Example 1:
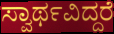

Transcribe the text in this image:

ಸ್ವಾರ್ಥವಿದ್ದರೆ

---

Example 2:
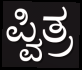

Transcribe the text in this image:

ಪ್ವಿತ್ರ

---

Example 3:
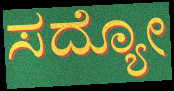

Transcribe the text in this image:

ಸದ್ಯೋ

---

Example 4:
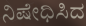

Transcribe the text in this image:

ನಿಷೇಧಿಸಿದ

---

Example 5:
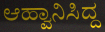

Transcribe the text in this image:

ಆಹ್ವಾನಿಸಿದ್ದ